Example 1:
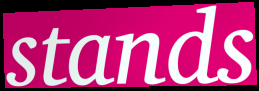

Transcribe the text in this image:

stands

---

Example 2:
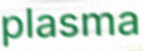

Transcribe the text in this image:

plasma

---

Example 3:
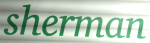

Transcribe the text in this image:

sherman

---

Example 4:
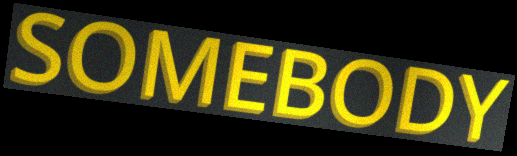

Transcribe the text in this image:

SOMEBODY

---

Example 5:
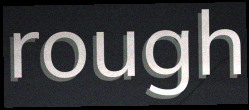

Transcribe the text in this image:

rough